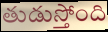
తుడుస్తోంది